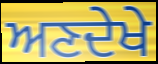
ਅਣਦੇਖੇ